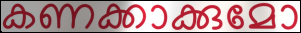
കണക്കാക്കുമോ